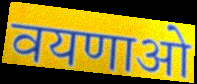
वयणाओ